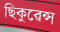
ছিকুৱেন্স